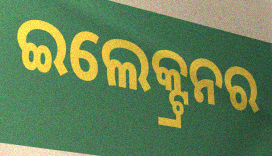
ଇଲେକ୍ଟ୍ରନର